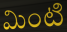
మింటి